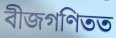
বীজগণিতত